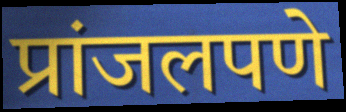
प्रांजलपणे